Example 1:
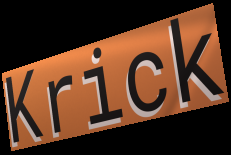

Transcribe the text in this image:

Krick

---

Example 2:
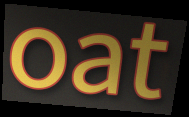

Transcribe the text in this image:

oat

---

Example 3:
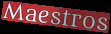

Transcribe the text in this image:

Maestros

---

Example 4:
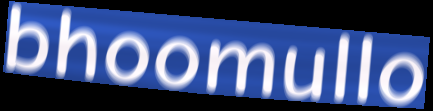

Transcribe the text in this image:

bhoomullo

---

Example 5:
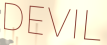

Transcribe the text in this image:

DEVIL